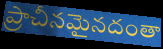
ప్రాచీనమైనదంతా